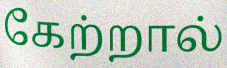
கேற்றால்